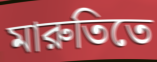
মারুতিতে